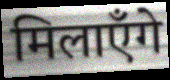
मिलाएँगे